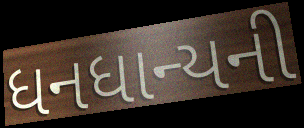
ધનધાન્યની